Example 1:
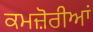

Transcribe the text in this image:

ਕਮਜ਼ੋਰੀਆਂ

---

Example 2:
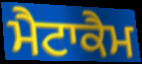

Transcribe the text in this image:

ਮੈਟਾਕੈਮ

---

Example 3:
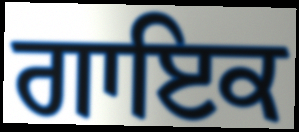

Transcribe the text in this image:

ਗਾਇਕ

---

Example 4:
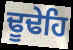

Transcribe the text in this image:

ਢੂਢੇਹਿ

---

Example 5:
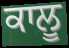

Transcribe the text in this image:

ਕਾਲੂ